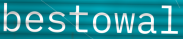
bestowal